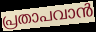
പ്രതാപവാൻ